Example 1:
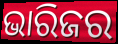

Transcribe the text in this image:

ଭାରିଜର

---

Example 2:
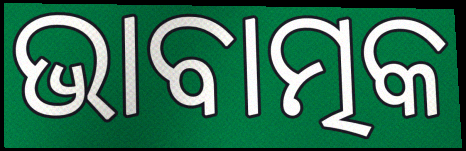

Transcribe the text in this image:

ଭାବାତ୍ମକ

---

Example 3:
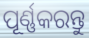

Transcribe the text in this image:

ପୂର୍ଣ୍ଣକରନ୍ତୁ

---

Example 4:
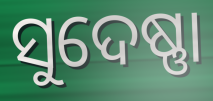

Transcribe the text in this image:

ସୁଦେଷ୍ଣା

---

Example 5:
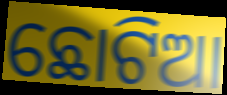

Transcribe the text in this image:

ଛୋଟିଆ